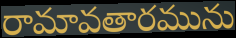
రామావతారమును